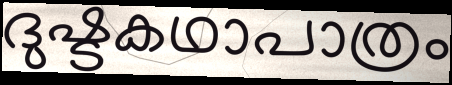
ദുഷ്ടകഥാപാത്രം